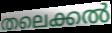
തലെക്കൽ